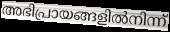
അഭിപ്രായങ്ങളിൽനിന്ന്